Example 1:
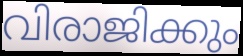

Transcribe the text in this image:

വിരാജിക്കും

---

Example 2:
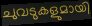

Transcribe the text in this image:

ചുവടുകളുമായി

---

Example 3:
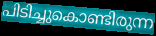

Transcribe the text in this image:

പിടിച്ചുകൊണ്ടിരുന്ന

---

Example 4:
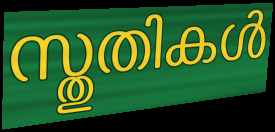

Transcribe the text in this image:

സ്തുതികൾ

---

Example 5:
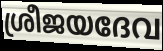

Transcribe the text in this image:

ശ്രീജയദേവ